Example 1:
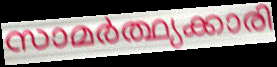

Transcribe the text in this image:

സാമർത്ഥ്യക്കാരി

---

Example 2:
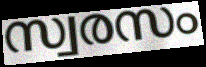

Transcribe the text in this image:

സ്വരസം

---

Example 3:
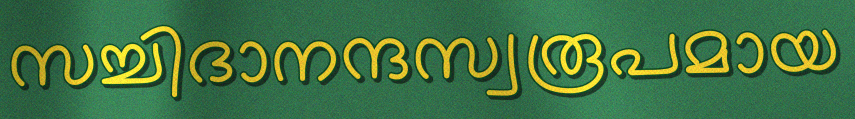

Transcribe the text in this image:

സച്ചിദാനന്ദസ്വരൂപമായ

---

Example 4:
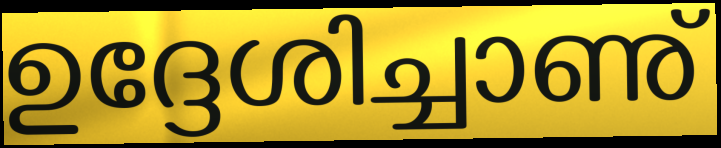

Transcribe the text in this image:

ഉദ്ദേശിച്ചാണു്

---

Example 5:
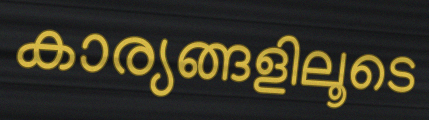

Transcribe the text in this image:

കാര്യങ്ങളിലൂടെ